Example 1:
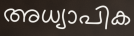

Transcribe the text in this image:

അധ്യാപിക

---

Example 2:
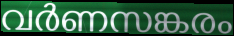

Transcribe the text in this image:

വർണസങ്കരം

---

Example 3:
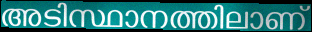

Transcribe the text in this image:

അടിസ്ഥാനത്തിലാണ്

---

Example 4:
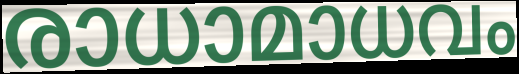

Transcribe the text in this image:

രാധാമാധവം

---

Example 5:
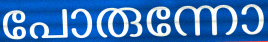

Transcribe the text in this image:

പോരുന്നോ